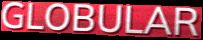
GLOBULAR